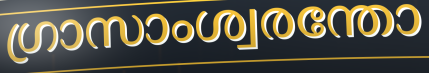
ഗ്രാസാംശ്വരന്തോ